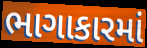
ભાગાકારમાં